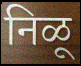
निळू